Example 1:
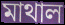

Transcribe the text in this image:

মাথাল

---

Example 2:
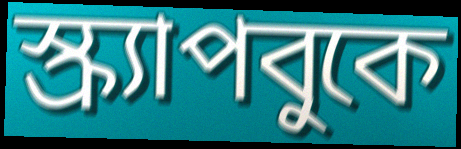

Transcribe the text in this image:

স্ক্র্যাপবুকে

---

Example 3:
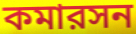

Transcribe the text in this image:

কমারসন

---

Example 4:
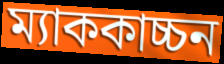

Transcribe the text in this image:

ম্যাককাচ্চন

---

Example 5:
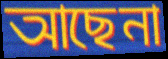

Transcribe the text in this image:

আছেনা